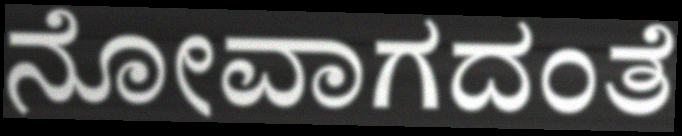
ನೋವಾಗದಂತೆ